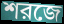
শরজে